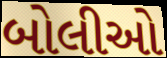
બોલીઓ